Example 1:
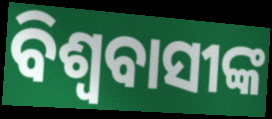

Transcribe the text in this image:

ବିଶ୍ଵବାସୀଙ୍କ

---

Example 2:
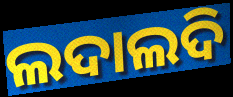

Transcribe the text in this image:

ଲଦାଲଦି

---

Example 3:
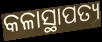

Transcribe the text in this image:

କଳାସ୍ଥାପତ୍ୟ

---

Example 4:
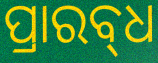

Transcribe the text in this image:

ପ୍ରାରବ୍‍ଧ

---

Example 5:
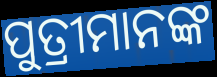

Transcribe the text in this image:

ପୁତ୍ରୀମାନଙ୍କ